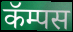
कॅम्पस